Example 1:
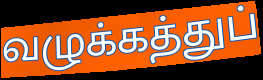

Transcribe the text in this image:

வழுக்கத்துப்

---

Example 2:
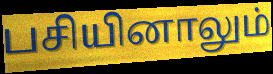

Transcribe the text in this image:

பசியினாலும்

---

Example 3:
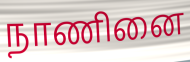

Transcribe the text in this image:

நாணினை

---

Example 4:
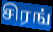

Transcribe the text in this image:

சிரங்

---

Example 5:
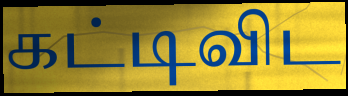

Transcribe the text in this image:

கட்டிவிட